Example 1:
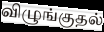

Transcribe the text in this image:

விழுங்குதல்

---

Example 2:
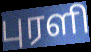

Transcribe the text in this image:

புரளி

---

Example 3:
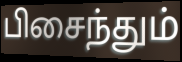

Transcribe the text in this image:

பிசைந்தும்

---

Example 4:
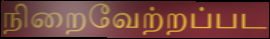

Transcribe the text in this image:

நிறைவேற்றப்பட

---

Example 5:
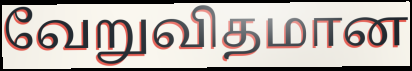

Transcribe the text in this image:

வேறுவிதமான